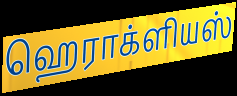
ஹெராக்ளியஸ்